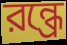
রন্ধ্রে